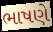
ભાષણે